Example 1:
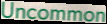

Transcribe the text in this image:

Uncommon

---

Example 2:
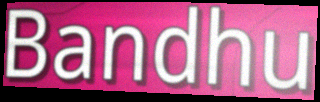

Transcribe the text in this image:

Bandhu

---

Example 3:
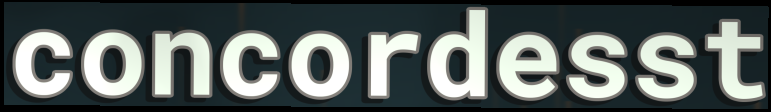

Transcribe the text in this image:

concordesst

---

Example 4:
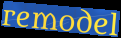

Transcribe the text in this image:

remodel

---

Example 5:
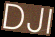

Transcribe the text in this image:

DJI